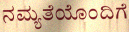
ನಮ್ಯತೆಯೊಂದಿಗೆ